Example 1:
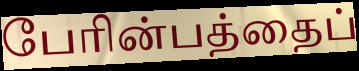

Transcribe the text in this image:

பேரின்பத்தைப்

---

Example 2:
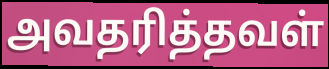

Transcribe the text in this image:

அவதரித்தவள்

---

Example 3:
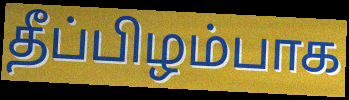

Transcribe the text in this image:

தீப்பிழம்பாக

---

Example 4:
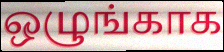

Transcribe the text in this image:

ஒழுங்காக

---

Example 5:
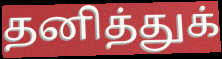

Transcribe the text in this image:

தனித்துக்